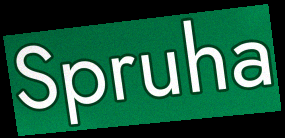
Spruha